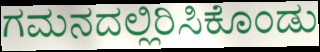
ಗಮನದಲ್ಲಿರಿಸಿಕೊಂಡು